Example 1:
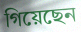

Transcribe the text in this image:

গিয়েছেন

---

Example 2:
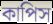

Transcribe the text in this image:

কাপিস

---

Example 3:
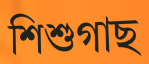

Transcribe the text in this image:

শিশুগাছ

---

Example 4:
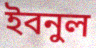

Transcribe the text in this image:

ইবনুল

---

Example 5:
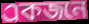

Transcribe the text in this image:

একজনে